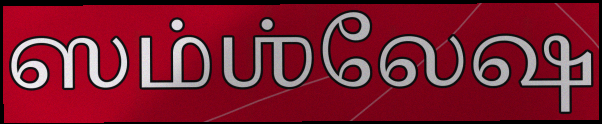
ஸம்ஶ்லேஷ